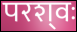
परश्वः